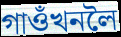
গাওঁখনলৈ